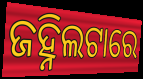
ଜହ୍ନିଲଟାରେ